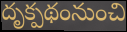
దృక్పథంనుంచి